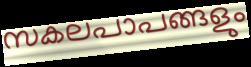
സകലപാപങ്ങളും